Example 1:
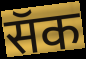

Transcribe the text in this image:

सॅक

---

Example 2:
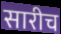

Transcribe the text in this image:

सारीच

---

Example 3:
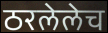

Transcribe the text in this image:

ठरलेलेच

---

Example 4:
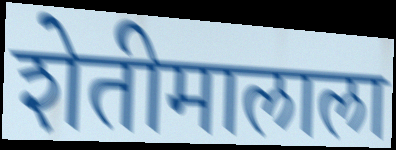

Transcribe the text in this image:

शेतीमालाला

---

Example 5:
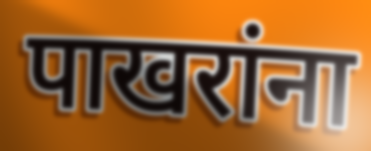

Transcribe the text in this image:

पाखरांना